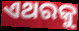
ଏଥରକୁ